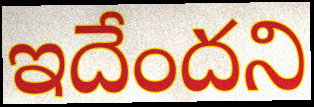
ఇదేందని